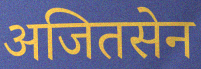
अजितसेन